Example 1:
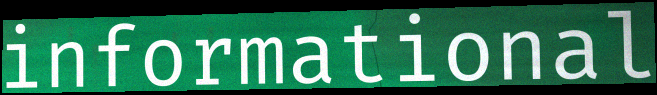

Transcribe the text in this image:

informational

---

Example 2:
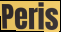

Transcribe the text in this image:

Peris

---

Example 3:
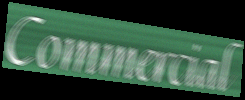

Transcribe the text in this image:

Commercial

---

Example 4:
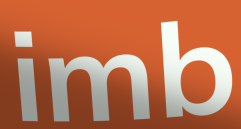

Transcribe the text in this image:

imb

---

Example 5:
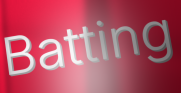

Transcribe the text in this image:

Batting